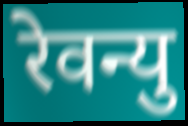
रेवन्यु